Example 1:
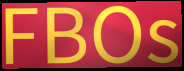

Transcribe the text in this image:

FBOs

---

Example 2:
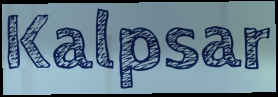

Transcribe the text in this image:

Kalpsar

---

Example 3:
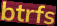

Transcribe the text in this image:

btrfs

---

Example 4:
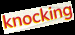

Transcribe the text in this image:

knocking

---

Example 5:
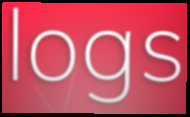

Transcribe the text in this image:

logs